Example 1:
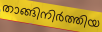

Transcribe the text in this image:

താങ്ങിനിർത്തിയ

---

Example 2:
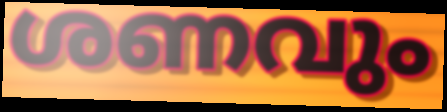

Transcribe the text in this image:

ശണവും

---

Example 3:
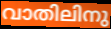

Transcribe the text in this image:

വാതിലിനു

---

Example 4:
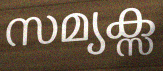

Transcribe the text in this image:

സമ്യക്സ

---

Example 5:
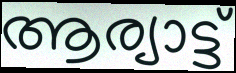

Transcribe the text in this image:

ആര്യാട്ട്